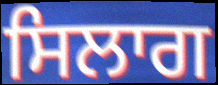
ਸਿਲਾਗ